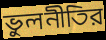
ভুলনীতির